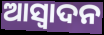
ଆସ୍ୱାଦନ